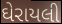
ઘેરાયલી